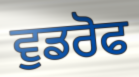
ਵੁਡਰੋਫ